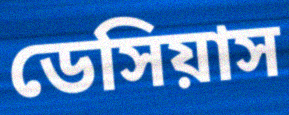
ডেসিয়াস